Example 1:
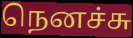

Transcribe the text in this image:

நெனச்சு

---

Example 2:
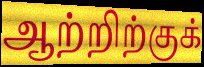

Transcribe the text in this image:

ஆற்றிற்குக்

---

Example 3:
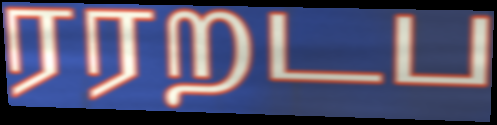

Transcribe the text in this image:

ரரறடப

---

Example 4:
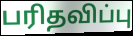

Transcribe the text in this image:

பரிதவிப்பு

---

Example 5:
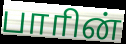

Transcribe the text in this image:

பாரின்